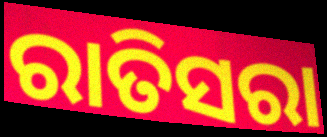
ରାତିସରା